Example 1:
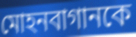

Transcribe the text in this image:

মোহনবাগানকে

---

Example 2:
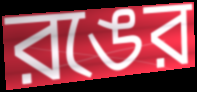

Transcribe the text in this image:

রঙের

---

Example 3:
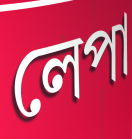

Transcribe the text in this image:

লেপা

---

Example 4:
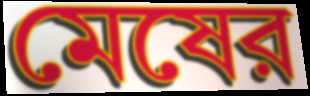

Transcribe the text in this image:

মেষের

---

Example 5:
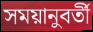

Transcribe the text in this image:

সময়ানুবর্তী